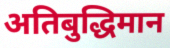
अतिबुद्धिमान